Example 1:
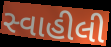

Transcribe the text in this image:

સ્વાહીલી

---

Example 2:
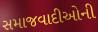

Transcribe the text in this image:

સમાજવાદીઓની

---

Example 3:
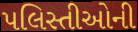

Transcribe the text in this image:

પલિસ્તીઓની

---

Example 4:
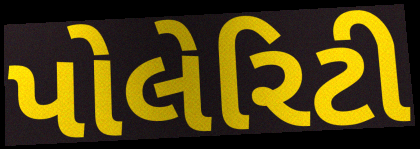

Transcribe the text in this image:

પોલેરિટી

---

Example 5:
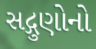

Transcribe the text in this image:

સદ્ગુણોનો